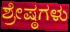
ಶ್ರೇಷ್ಠಗಳು